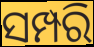
ସମ୍ପରି